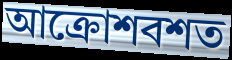
আক্রোশবশত